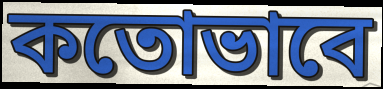
কতোভাবে